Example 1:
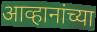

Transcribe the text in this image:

आव्हानांच्या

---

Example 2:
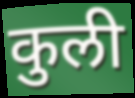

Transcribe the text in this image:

कुली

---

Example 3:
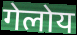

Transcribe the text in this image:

गेलोय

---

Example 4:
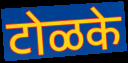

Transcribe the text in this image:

टोळके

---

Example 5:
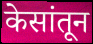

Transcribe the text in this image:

केसांतून